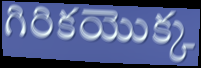
గిరికయొక్క